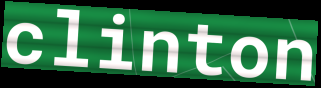
clinton